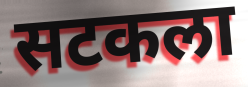
सटकला